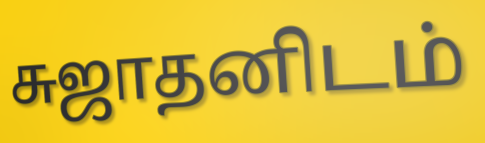
சுஜாதனிடம்